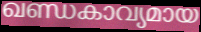
ഖണ്ഡകാവ്യമായ